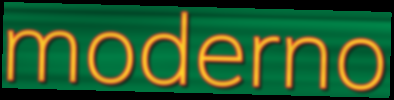
moderno